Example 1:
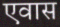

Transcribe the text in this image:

एवास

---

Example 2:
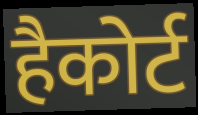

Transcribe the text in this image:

हैकोर्ट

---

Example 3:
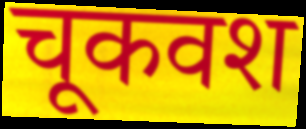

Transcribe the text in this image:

चूकवश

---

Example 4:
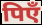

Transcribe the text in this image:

पिएँ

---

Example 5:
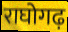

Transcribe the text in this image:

राघोगढ़